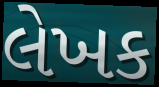
લેખક